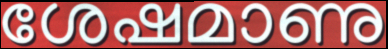
ശേഷമാണു